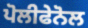
ਪੋਲੀਫੇਨੋਲ